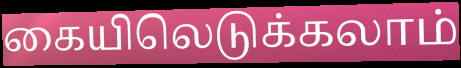
கையிலெடுக்கலாம்